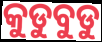
କୁଡୁବୁଡୁ